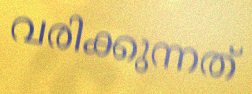
വരിക്കുന്നത്